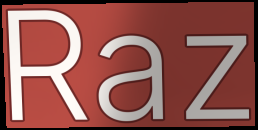
Raz